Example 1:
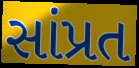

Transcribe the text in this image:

સાંપ્રત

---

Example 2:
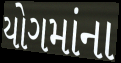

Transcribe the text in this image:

યોગમાંના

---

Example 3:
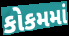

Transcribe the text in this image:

કોકમમાં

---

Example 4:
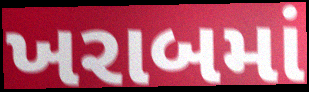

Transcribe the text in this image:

ખરાબમાં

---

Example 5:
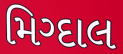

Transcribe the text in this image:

મિગ્દાલ